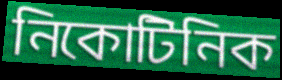
নিকোটিনিক